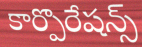
కార్పొరేషన్స్